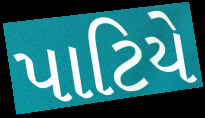
પાટિયે